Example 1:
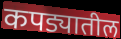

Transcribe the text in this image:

कपड्यातील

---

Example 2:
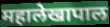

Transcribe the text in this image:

महालेखापाल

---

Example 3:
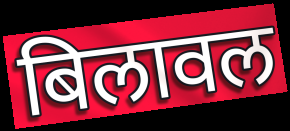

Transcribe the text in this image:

बिलावल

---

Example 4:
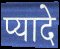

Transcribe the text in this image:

प्यादे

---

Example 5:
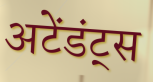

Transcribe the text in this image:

अटेंडंट्स